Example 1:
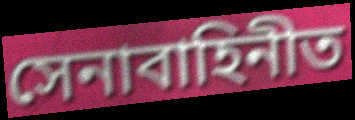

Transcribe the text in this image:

সেনাবাহিনীত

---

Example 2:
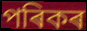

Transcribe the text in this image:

পৰিকৰ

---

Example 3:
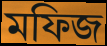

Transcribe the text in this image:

মফিজ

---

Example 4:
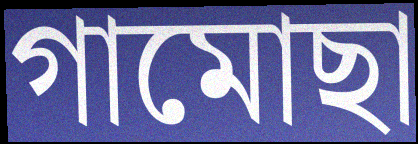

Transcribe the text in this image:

গামোছা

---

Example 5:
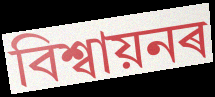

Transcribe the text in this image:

বিশ্বায়নৰ